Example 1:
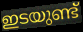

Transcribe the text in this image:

ഇടയുണ്ട്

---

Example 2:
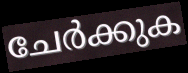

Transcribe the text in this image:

ചേർക്കുക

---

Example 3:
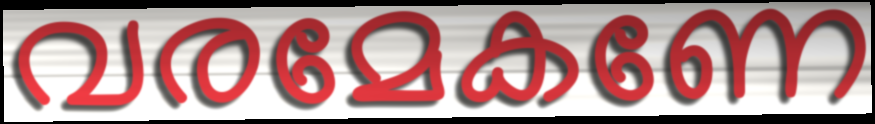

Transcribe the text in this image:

വരമേകണേ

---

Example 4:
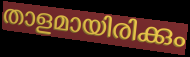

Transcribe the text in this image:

താളമായിരിക്കും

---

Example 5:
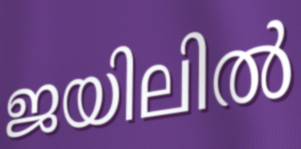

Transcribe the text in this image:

ജയിലിൽ